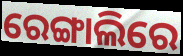
ରେଙ୍ଗାଲିରେ